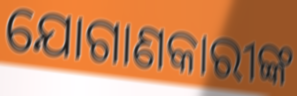
ଯୋଗାଣକାରୀଙ୍କ